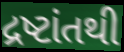
દ્રષ્ટાંતથી